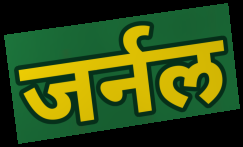
जर्नल